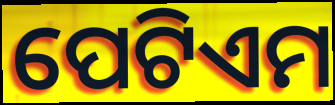
ପେଟିଏମ